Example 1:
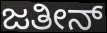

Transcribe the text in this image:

ಜತೀನ್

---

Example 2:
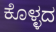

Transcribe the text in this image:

ಕೊಳ್ಳದ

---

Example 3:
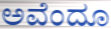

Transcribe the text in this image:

ಅವೆಂದೂ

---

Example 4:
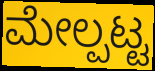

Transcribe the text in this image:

ಮೇಲ್ಪಟ್ಟ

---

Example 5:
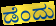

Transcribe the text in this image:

ಡೆಂದು